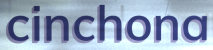
cinchona